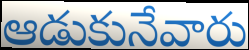
ఆడుకునేవారు